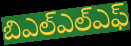
బిఎల్ఎల్ఎఫ్